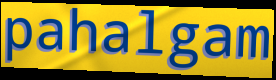
pahalgam